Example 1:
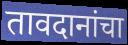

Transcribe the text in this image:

तावदानांचा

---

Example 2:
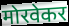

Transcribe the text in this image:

मोरवेकर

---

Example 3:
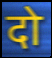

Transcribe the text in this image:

दो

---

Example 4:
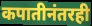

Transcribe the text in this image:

कपातीनंतरही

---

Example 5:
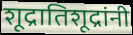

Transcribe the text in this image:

शूद्रातिशूद्रांनी